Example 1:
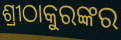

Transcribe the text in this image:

ଶ୍ରୀଠାକୁରଙ୍କର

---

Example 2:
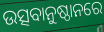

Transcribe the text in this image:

ଉତ୍ସବାନୁଷ୍ଠାନରେ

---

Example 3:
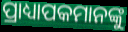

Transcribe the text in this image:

ପ୍ରାଧ୍ୟାପକମାନଙ୍କୁ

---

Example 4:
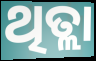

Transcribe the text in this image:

ଥିତ୍ଲା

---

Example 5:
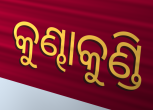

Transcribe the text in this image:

କୁଣ୍ଢାକୁଣ୍ଡି